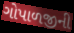
ગોપાળજીની